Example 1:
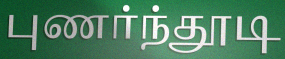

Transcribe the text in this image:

புணர்ந்தூடி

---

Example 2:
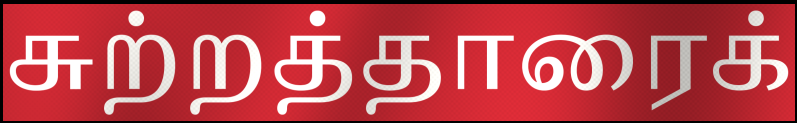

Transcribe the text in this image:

சுற்றத்தாரைக்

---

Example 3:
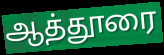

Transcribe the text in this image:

ஆத்தூரை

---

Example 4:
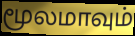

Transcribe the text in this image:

மூலமாவும்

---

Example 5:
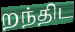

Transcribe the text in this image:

றந்திட